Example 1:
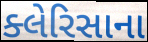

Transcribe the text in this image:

ક્લેરિસાના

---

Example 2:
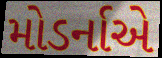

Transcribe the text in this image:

મોડર્નાએ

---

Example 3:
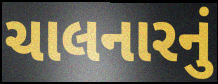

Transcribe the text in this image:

ચાલનારનું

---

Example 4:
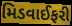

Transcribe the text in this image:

મિડવાઈફરી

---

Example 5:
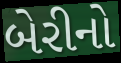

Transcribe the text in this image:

બેરીનો